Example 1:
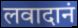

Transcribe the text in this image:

लवादानं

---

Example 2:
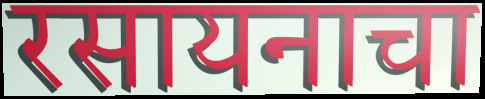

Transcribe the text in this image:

रसायनाचा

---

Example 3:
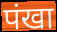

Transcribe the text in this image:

पंखा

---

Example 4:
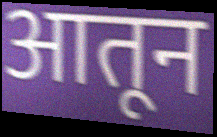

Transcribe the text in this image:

आतून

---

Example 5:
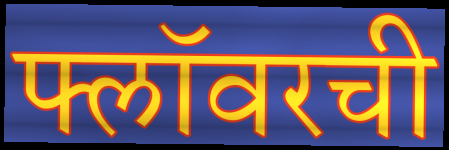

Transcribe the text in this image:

फ्लॉवरची